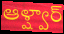
ఆళ్ష్వార్